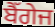
ਬੈੱਗੇਜ